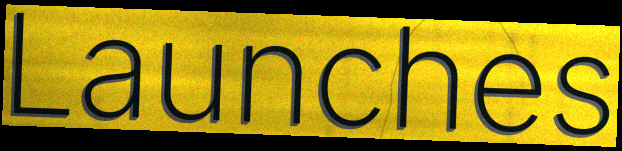
Launches